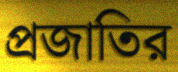
প্রজাতির